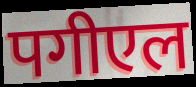
पगीएल